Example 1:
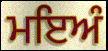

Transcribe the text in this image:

ਮਇਅੰ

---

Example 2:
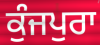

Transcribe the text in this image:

ਕੁੰਜਪੁਰਾ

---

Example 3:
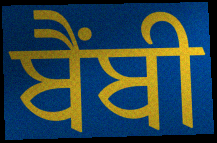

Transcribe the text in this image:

ਬੈਂਬੀ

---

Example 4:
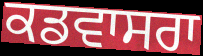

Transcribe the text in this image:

ਕਡਵਾਸਰਾ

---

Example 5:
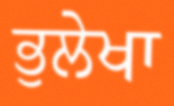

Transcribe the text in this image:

ਭੁਲੇਖਾ